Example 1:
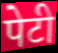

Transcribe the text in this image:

पेटी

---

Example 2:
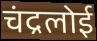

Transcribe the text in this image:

चंद्रलोई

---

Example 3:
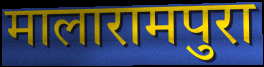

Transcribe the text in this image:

मालारामपुरा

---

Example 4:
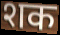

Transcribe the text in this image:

शक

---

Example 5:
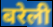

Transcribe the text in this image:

बरेली